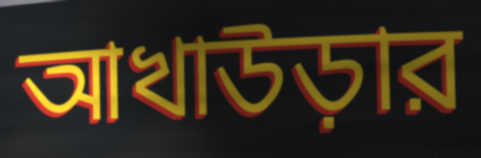
আখাউড়ার